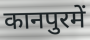
कानपुरमें